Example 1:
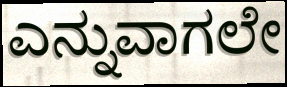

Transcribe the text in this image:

ಎನ್ನುವಾಗಲೇ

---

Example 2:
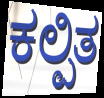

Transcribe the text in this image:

ಕಲ್ಪಿತ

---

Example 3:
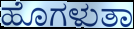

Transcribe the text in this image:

ಹೊಗಳುತಾ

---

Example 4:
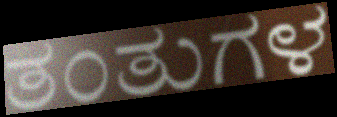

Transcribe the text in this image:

ತಂತುಗಳ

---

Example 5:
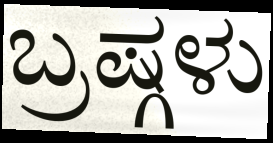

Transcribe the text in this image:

ಬ್ರಷ್ಗಳು